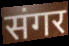
संगर